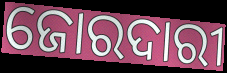
ଜୋରଦାରୀ